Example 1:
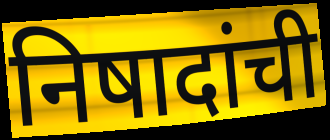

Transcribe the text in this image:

निषादांची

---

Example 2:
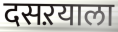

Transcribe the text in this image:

दसऱयाला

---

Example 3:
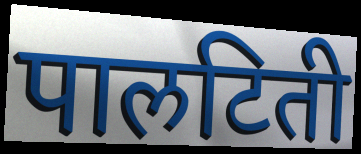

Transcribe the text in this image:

पालटिती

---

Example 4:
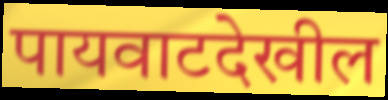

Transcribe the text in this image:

पायवाटदेखील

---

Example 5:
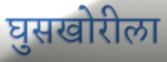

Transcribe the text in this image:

घुसखोरीला